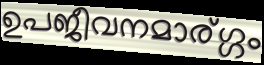
ഉപജീവനമാര്ഗ്ഗം